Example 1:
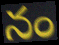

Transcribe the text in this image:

నం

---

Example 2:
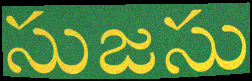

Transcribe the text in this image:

సుజసు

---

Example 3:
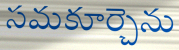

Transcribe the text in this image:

సమకూర్చెను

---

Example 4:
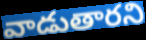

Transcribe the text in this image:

వాడుతారని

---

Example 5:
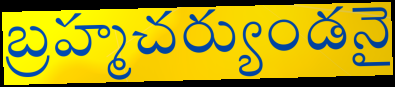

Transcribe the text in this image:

బ్రహ్మచర్యుండనై